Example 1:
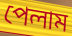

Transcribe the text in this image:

পেলাম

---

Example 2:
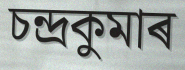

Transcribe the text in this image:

চন্দ্ৰকুমাৰ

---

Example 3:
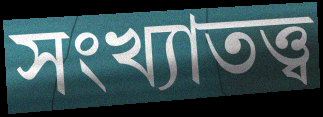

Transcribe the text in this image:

সংখ্যাতত্ত্ব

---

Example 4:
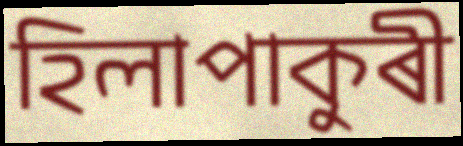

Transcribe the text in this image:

হিলাপাকুৰী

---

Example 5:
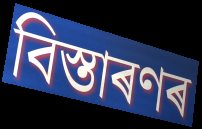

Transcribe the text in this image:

বিস্তাৰণৰ